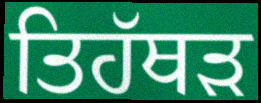
ਤਿਹੱਥੜ